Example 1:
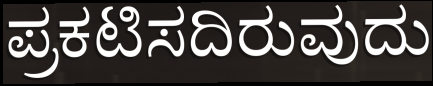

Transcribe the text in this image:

ಪ್ರಕಟಿಸದಿರುವುದು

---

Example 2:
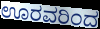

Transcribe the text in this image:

ಊರವರಿಂದ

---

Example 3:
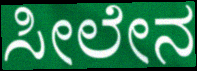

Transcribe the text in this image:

ಸೀಲೇನ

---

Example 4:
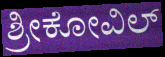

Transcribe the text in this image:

ಶ್ರೀಕೋವಿಲ್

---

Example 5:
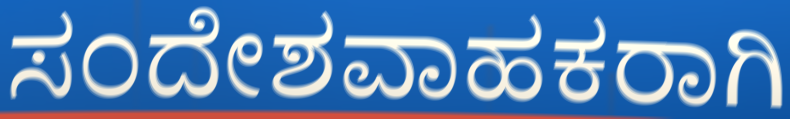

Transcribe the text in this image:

ಸಂದೇಶವಾಹಕರಾಗಿ